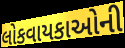
લોકવાયકાઓની